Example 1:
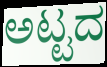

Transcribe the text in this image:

ಅಟ್ಟದ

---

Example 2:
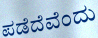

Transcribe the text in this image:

ಪಡೆದೆವೆಂದು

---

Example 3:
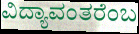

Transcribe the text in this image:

ವಿದ್ಯಾವಂತರೆಂಬ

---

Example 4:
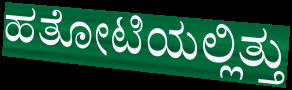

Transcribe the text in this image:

ಹತೋಟಿಯಲ್ಲಿತ್ತು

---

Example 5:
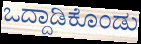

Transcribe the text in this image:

ಒದ್ದಾಡಿಕೊಂಡು